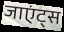
जाएंट्स